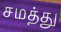
சமத்து